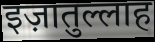
इज़ातुल्लाह